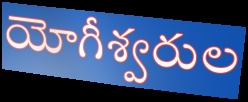
యోగీశ్వరుల